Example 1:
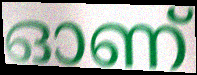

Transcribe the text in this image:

ഓണ്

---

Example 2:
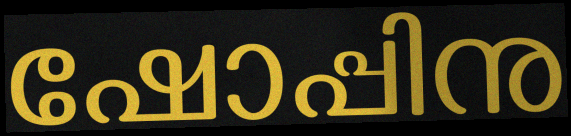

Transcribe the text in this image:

ഷോപ്പിനു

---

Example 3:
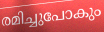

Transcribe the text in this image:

രമിച്ചുപോകും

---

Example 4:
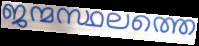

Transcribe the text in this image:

ജന്മസ്ഥലത്തെ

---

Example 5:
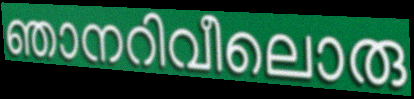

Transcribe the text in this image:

ഞാനറിവീലൊരു